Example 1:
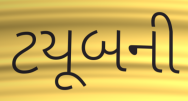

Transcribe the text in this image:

ટયૂબની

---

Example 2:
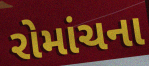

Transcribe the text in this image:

રોમાંચના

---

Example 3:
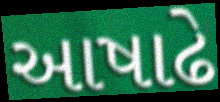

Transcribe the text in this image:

આષાઢે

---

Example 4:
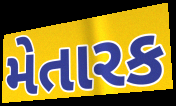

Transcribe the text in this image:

મેતારક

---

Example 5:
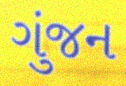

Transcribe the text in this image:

ગુંજન